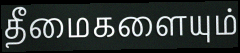
தீமைகளையும்